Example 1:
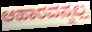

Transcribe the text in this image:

ಆಹಾರವನ್ನಲ್ಲ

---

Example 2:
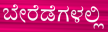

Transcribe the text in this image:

ಬೇರೆಡೆಗಳಲ್ಲಿ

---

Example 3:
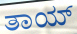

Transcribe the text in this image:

ತಾಯ್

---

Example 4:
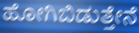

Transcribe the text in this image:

ಹೋಗಿಬಿಡುತ್ತೇನೆ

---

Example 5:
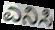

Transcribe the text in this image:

ಎನಿಸಿ